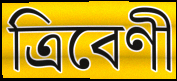
ত্ৰিবেণী